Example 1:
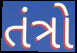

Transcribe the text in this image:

તંત્રો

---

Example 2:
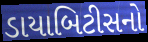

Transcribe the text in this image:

ડાયાબિટીસનો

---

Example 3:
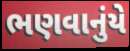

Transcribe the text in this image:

ભણવાનુંયે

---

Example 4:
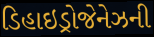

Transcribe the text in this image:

ડિહાઇડ્રોજેનેઝની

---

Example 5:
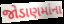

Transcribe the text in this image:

જોડાણમાંના